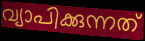
വ്യാപിക്കുന്നത്